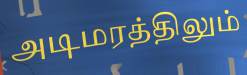
அடிமரத்திலும்